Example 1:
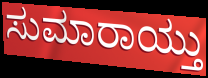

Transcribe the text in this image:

ಸುಮಾರಾಯ್ತು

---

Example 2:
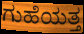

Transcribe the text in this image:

ಗುಹೆಯತ್ತ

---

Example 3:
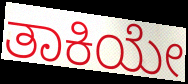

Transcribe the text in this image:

ತಾಕಿಯೇ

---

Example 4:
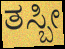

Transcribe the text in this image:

ತಸ್ಬೀ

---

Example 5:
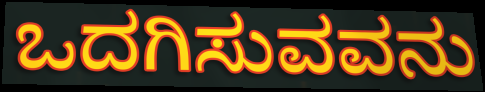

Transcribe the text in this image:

ಒದಗಿಸುವವನು